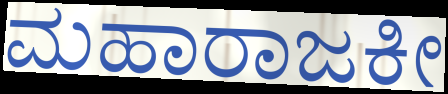
ಮಹಾರಾಜಕೀ